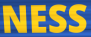
NESS